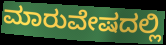
ಮಾರುವೇಷದಲ್ಲಿ